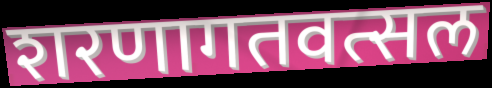
शरणागतवत्सल